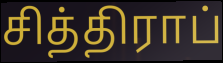
சித்திராப்